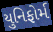
યુનિફોર્મ